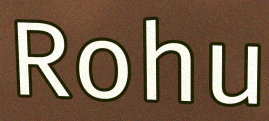
Rohu